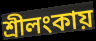
শ্রীলংকায়